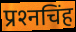
प्रश्नचिंह